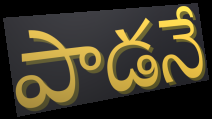
పాడనే